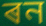
ৰন